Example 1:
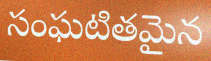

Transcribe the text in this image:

సంఘటితమైన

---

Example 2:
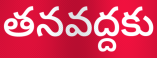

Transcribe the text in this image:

తనవద్దకు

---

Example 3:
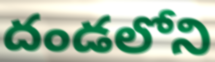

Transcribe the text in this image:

దండలోని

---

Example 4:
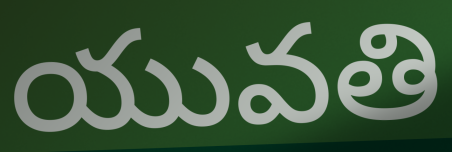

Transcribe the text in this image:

యువతి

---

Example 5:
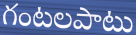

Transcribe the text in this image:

గంటలపాటు